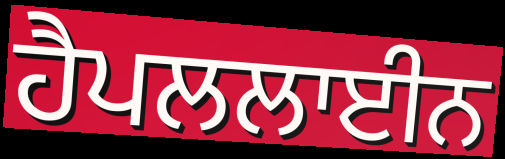
ਹੈਪਲਲਾਈਨ